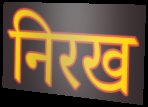
निरख